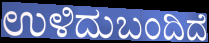
ಉಳಿದುಬಂದಿದೆ